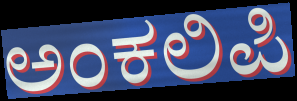
ಅಂಕಲಿಪಿ